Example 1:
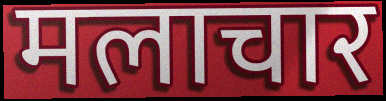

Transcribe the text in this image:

मलाचार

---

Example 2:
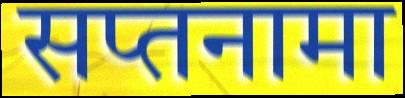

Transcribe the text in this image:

सप्तनामा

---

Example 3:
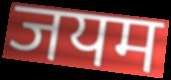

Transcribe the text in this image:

जयम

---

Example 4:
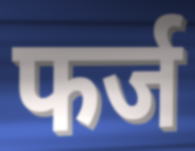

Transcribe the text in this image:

फर्ज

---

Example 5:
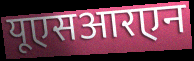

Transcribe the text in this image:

यूएसआरएन